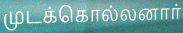
முடக்கொல்லனார்